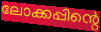
ലോക്കപ്പിന്റെ